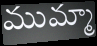
ముమ్మా